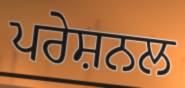
ਪਰੇਸ਼ਨਲ